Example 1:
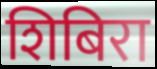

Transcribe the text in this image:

शिबिरा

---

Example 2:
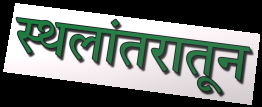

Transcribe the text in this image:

स्थलांतरातून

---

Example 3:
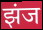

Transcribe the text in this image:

झंज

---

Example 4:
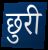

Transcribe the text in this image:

छुरी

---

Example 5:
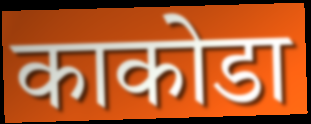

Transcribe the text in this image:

काकोडा